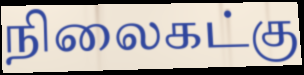
நிலைகட்கு